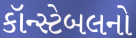
કૉન્સ્ટેબલનો